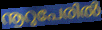
നൂറുപേരിൽ